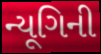
ન્યૂગિની